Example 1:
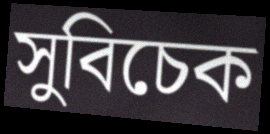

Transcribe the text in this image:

সুবিচেক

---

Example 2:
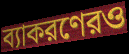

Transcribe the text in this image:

ব্যাকরণেরও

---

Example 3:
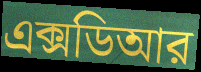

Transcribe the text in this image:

এক্সডিআর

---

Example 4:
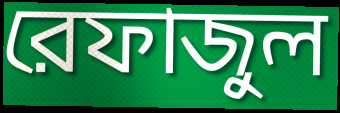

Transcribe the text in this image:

রেফাজুল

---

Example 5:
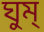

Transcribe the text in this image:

ঘুম্